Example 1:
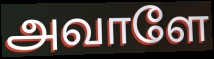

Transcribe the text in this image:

அவாளே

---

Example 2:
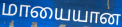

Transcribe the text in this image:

மாயையான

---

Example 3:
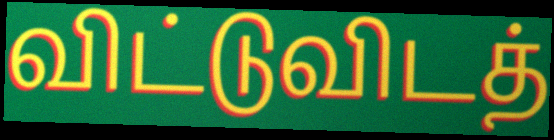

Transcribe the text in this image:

விட்டுவிடத்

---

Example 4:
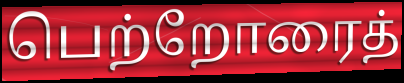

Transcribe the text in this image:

பெற்றோரைத்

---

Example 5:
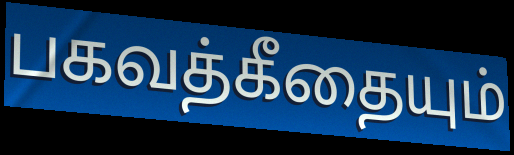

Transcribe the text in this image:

பகவத்கீதையும்